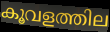
കൂവളത്തില